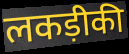
लकड़ीकी